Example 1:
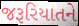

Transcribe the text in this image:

જરૂરિયાતને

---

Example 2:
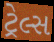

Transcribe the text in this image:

ટ્રેલ્સ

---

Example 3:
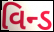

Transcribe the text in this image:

વિન્ડ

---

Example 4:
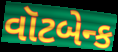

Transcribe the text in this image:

વૉટબેન્ક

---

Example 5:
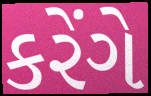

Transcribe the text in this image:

કરેંગે